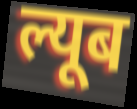
ल्यूब